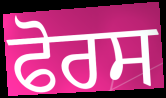
ਫੋਰਸ